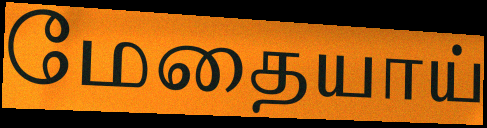
மேதையாய்